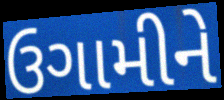
ઉગામીને